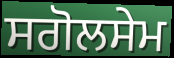
ਸਗੋਲਸੇਮ